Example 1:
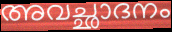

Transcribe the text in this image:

അവച്ഛാദനം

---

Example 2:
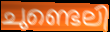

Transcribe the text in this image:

ചുണ്ടെലി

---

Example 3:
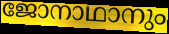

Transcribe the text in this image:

ജോനാഥാനും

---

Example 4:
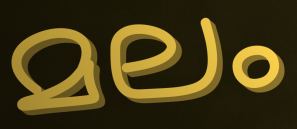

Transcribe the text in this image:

മലം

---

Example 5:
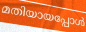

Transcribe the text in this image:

മതിയായപ്പോൾ